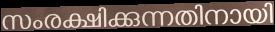
സംരക്ഷിക്കുന്നതിനായി